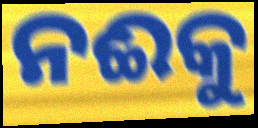
ନଈକୁ